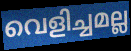
വെളിച്ചമല്ല